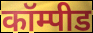
कॉम्पीड